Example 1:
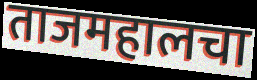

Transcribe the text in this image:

ताजमहालचा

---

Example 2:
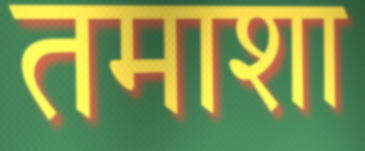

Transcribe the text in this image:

तमाशा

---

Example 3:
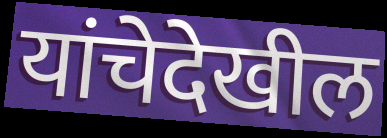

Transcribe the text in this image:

यांचेदेखील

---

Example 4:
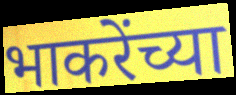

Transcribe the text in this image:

भाकरेंच्या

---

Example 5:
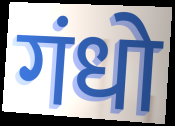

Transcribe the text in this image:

गंधो